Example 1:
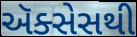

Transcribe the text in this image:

ઍક્સેસથી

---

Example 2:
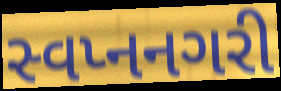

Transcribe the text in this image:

સ્વપ્નનગરી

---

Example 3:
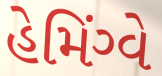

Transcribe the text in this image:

હેમિંગ્વે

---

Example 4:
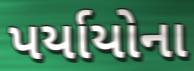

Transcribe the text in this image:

પર્યાયોના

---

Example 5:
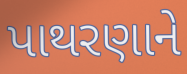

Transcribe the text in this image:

પાથરણાને